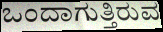
ಒಂದಾಗುತ್ತಿರುವ